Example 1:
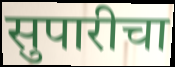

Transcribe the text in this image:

सुपारीचा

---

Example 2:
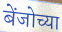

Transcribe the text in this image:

बेंजोच्या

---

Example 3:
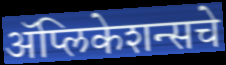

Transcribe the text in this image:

ॲप्लिकेशन्सचे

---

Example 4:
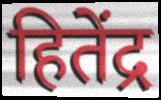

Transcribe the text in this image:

हितेंद्र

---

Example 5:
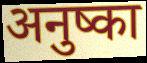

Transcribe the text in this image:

अनुष्का